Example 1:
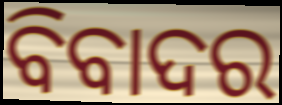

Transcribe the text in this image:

ବିବାଦର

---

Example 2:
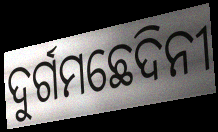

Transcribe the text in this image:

ଦୁର୍ଗମଛେଦିନୀ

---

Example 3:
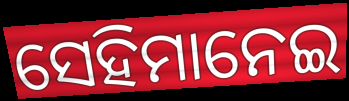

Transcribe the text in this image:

ସେହିମାନେଇ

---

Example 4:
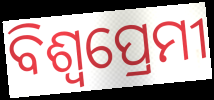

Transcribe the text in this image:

ବିଶ୍ଵପ୍ରେମୀ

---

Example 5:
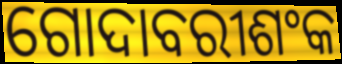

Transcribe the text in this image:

ଗୋଦାବରୀଶଂକ